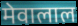
मेवालाल